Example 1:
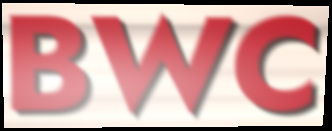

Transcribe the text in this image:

BWC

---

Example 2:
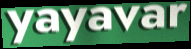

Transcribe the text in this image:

yayavar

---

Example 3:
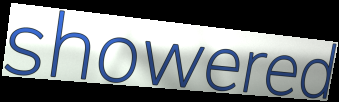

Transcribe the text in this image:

showered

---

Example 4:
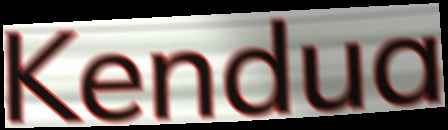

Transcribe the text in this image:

Kendua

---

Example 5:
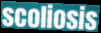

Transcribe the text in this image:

scoliosis